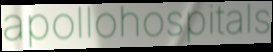
apollohospitals